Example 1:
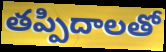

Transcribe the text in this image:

తప్పిదాలతో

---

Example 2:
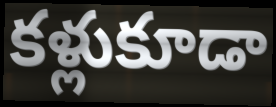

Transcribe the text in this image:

కళ్లుకూడా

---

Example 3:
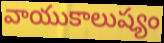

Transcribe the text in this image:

వాయుకాలుష్యం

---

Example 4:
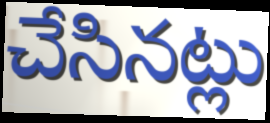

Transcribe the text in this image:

చేసినట్లు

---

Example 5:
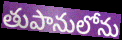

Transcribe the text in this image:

తుపానులోను